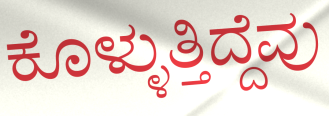
ಕೊಳ್ಳುತ್ತಿದ್ದೆವು